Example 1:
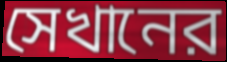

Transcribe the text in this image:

সেখানের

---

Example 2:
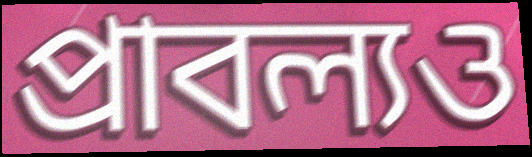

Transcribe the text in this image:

প্রাবল্যও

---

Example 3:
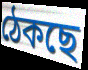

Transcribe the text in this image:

ঠেকছে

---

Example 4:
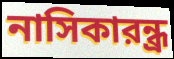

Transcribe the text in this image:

নাসিকারন্ধ্র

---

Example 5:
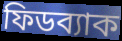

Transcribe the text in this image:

ফিডব্যাক